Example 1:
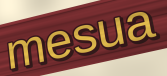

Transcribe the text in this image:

mesua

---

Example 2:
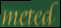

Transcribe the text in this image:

meted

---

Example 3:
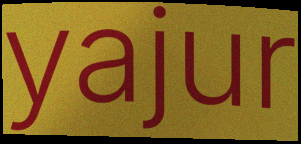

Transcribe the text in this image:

yajur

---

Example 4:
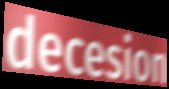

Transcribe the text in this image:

decesion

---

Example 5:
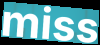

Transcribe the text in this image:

miss